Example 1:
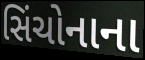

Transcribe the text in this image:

સિંચોનાના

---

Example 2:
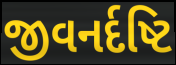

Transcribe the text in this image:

જીવનર્દષ્ટિ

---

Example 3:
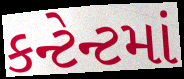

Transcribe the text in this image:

કન્ટેન્ટમાં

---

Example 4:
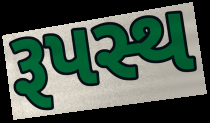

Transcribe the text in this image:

રૂપસ્થ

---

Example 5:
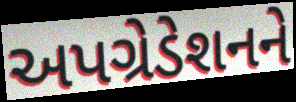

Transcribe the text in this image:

અપગ્રેડેશનને